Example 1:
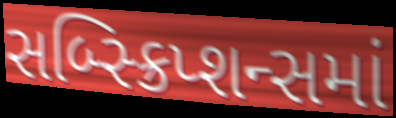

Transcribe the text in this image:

સબ્સ્ક્રિપ્શન્સમાં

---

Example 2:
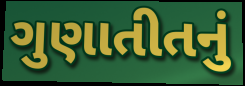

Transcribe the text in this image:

ગુણાતીતનું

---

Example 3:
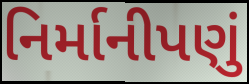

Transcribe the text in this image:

નિર્માનીપણું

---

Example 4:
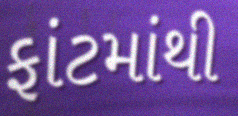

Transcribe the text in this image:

ફાંટમાંથી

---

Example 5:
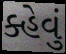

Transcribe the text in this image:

ક્હેવું